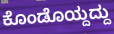
ಕೊಂಡೊಯ್ದದ್ದು